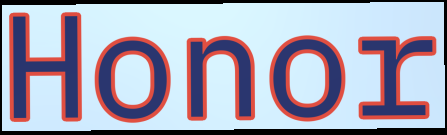
Honor